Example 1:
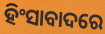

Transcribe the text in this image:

ହିଂସାବାଦରେ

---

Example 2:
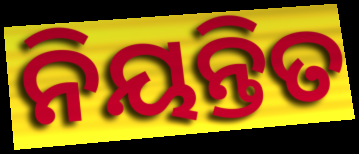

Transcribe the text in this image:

ନିୟନ୍ତିତ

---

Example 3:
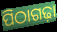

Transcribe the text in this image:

ପିଠାଗଢ଼ା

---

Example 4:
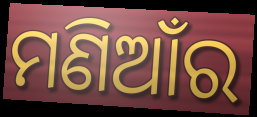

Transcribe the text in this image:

ମଣିଆଁର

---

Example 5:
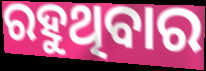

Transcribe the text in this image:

ରହୁଥିବାର